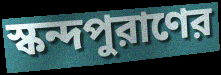
স্কন্দপুরাণের